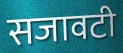
सजावटी